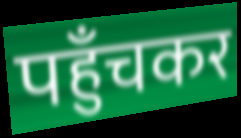
पहुँचकर